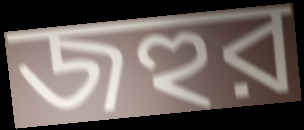
জহুর